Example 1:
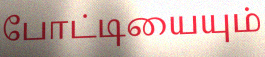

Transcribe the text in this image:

போட்டியையும்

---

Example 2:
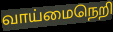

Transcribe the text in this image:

வாய்மைநெறி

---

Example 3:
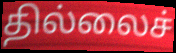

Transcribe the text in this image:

தில்லைச்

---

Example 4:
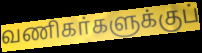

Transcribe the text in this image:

வணிகர்களுக்குப்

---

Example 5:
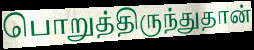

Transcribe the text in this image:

பொறுத்திருந்துதான்